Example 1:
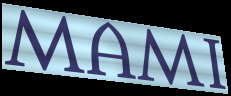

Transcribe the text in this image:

MAMI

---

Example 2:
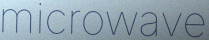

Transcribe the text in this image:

microwave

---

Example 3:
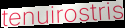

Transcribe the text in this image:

tenuirostris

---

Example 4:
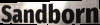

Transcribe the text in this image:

Sandborn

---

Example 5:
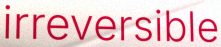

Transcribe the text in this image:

irreversible